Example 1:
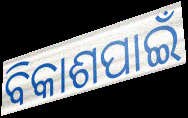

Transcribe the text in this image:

ବିକାଶପାଇଁ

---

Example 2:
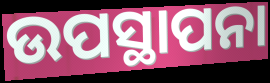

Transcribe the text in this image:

ଉପସ୍ଥାପନା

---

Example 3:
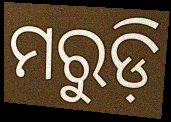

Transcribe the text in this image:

ମରୁଡ଼ି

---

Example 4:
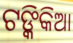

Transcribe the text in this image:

ଟଙ୍କିକିଆ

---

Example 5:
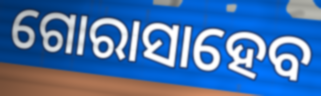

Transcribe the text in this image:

ଗୋରାସାହେବ